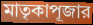
মাতৃকাপূজার